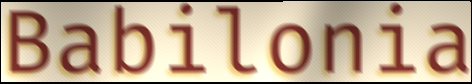
Babilonia